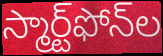
స్మార్ట్‌ఫోన్‌ల